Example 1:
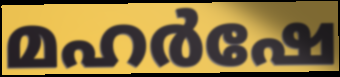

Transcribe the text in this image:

മഹർഷേ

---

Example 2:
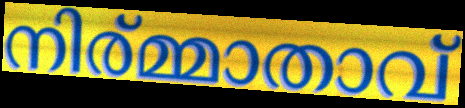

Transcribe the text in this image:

നിര്മ്മാതാവ്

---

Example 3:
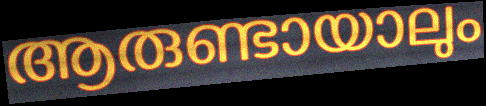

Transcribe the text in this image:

ആരുണ്ടായാലും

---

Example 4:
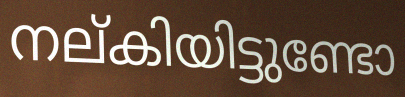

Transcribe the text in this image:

നല്കിയിട്ടുണ്ടോ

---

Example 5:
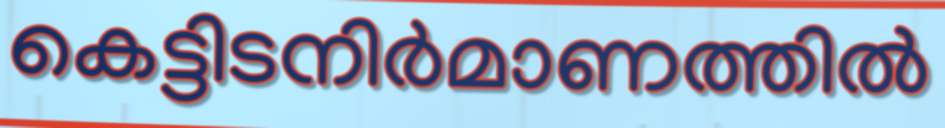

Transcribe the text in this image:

കെട്ടിടനിർമാണത്തിൽ